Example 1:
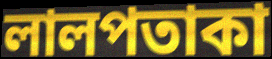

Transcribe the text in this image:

লালপতাকা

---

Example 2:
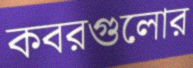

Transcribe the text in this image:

কবরগুলোর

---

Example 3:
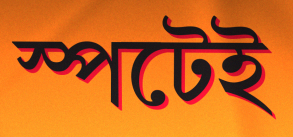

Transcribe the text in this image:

স্পটেই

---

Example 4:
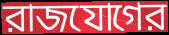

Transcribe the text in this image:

রাজযোগের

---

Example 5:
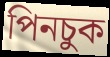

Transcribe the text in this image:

পিনচুক